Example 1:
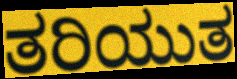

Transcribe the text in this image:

ತರಿಯುತ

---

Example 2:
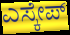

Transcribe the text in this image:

ಎಸ್ಕೇಪ್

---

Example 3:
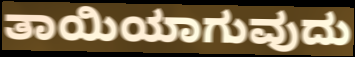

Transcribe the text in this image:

ತಾಯಿಯಾಗುವುದು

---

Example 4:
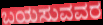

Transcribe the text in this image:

ಬಯಸುವವರ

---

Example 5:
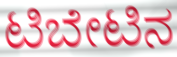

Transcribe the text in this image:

ಟಿಬೇಟಿನ